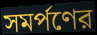
সমর্পণের